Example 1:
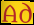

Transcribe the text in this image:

Ad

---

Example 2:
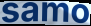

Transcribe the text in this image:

samo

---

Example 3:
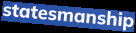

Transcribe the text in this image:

statesmanship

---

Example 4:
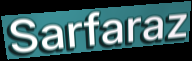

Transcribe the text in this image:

Sarfaraz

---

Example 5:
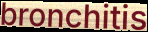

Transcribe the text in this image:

bronchitis